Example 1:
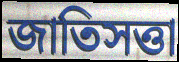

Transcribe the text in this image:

জাতিসত্তা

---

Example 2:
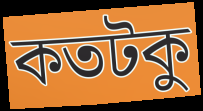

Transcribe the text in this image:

কতটকু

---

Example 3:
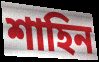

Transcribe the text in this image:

শাহিন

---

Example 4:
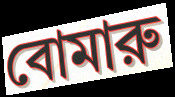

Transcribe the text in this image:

বোমারু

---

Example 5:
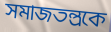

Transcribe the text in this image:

সমাজতন্ত্রকে